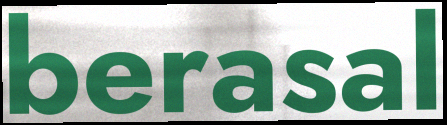
berasal